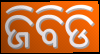
ଜିବିଡି